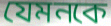
যেমনকে